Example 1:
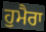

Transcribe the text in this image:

ਹੁਮੈਰਾ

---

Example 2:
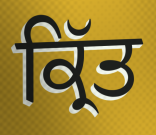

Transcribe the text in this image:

ਕ੍ਰਿੱਤ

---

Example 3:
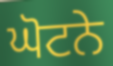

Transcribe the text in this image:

ਘੋਟਨੇ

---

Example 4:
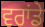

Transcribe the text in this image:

ਵਰਾਂਡੇ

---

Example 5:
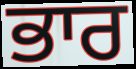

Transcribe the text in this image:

ਭਾਰ